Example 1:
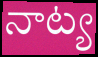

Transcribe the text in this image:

నాట్య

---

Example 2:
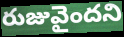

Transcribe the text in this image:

రుజువైందని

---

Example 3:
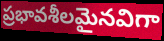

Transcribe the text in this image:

ప్రభావశీలమైనవిగా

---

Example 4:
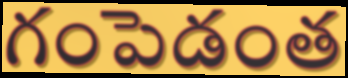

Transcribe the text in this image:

గంపెడంత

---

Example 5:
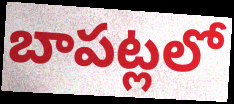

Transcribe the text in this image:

బాపట్లలో